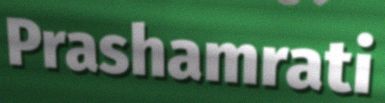
Prashamrati